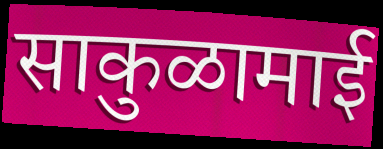
साकुळामाई